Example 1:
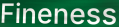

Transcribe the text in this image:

Fineness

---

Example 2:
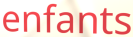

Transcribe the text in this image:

enfants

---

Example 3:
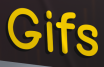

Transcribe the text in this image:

Gifs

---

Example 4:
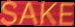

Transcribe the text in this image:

SAKE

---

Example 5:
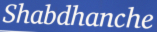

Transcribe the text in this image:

Shabdhanche